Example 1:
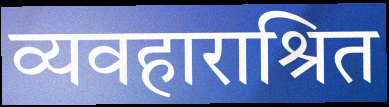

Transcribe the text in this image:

व्यवहाराश्रित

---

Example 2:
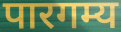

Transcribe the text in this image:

पारगम्य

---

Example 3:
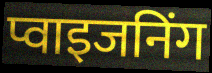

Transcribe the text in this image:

प्वाइजनिंग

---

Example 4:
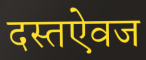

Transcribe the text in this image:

दस्तऐवज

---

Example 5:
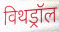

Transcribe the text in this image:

विथड्रॉल